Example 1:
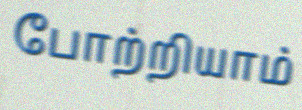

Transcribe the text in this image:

போற்றியாம்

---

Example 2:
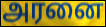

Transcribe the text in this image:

அரனை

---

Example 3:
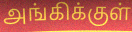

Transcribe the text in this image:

அங்கிக்குள்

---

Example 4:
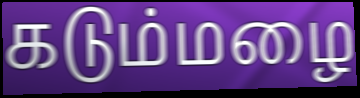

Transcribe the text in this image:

கடும்மழை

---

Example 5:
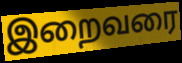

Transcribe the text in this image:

இறைவரை